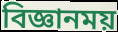
বিজ্ঞানময়